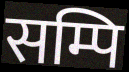
सम्पि